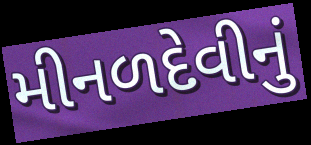
મીનળદેવીનું